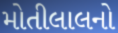
મોતીલાલનો